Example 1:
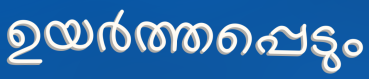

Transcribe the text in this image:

ഉയർത്തപ്പെടും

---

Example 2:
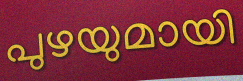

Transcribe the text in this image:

പുഴയുമായി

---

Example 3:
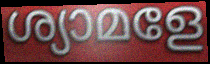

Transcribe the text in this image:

ശ്യാമളേ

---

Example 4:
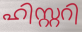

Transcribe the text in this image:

ഹിസ്റ്ററി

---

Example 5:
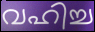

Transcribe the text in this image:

വഹിച്ച